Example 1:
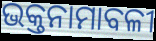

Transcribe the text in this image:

ଭକ୍ତନାମାବଳୀ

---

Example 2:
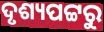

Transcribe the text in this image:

ଦୃଶ୍ୟପଟ୍ଟରୁ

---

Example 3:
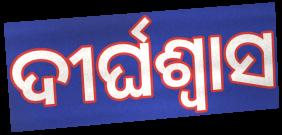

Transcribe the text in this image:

ଦୀର୍ଘଶ୍ବାସ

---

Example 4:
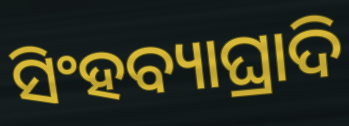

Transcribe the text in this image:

ସିଂହବ୍ୟାଘ୍ରାଦି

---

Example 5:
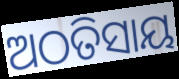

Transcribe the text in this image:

ଅଠତିସାୟ